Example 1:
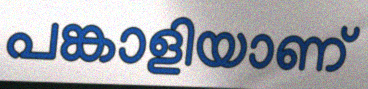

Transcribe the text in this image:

പങ്കാളിയാണ്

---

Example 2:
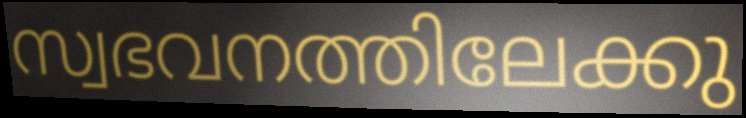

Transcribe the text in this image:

സ്വഭവനത്തിലേക്കു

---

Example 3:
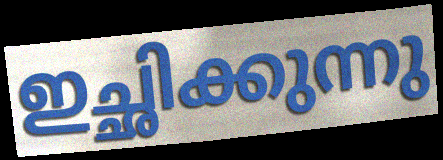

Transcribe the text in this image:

ഇച്ഛിക്കുന്നു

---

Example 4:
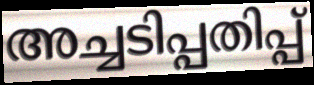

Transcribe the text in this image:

അച്ചടിപ്പതിപ്പ്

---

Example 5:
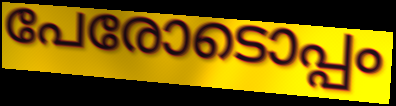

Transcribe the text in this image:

പേരോടൊപ്പം